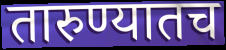
तारुण्यातच